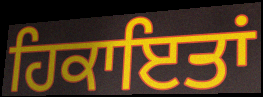
ਹਿਕਾਇਤਾਂ